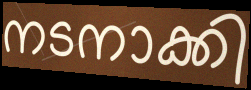
നടനാക്കി